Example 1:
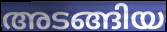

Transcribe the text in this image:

അടങ്ങിയ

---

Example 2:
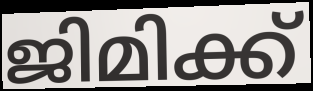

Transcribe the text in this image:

ജിമിക്ക്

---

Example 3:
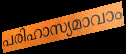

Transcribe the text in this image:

പരിഹാസ്യമാവാം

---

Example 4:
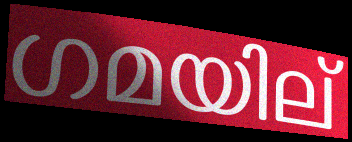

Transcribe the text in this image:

ഗമയില്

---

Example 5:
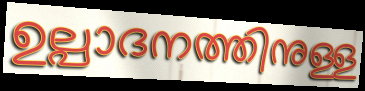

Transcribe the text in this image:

ഉല്പാദനത്തിനുള്ള